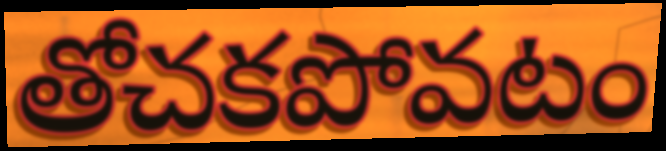
తోచకపోవటం